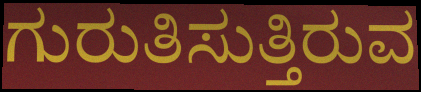
ಗುರುತಿಸುತ್ತಿರುವ